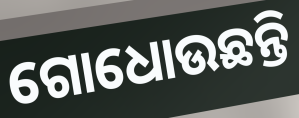
ଗୋଧୋଉଛନ୍ତି